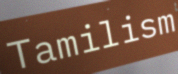
Tamilism